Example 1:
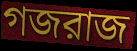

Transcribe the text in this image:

গজরাজ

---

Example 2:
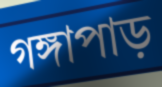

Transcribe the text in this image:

গঙ্গাপাড়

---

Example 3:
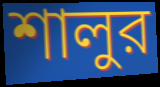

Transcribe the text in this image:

শালুর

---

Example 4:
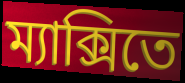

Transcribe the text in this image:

ম্যাক্সিতে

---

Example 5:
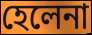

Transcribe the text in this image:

হেলেনা